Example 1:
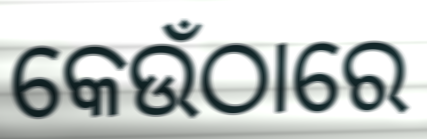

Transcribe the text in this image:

କେଉଁଠାରେ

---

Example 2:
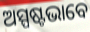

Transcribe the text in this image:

ଅସ୍ପଷ୍ଟଭାବେ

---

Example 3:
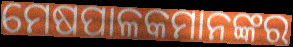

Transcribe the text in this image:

ମେଷପାଳକମାନଙ୍କର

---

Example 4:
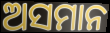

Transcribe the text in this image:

ଅସମାନ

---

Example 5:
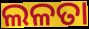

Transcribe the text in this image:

ଲଳତା